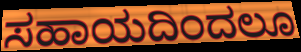
ಸಹಾಯದಿಂದಲೂ